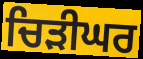
ਚਿੜੀਘਰ